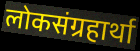
लोकसंग्रहार्था